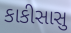
કાકીસાસુ